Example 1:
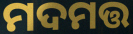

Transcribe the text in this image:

ମଦମତ୍ତ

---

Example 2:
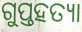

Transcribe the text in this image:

ଗୁପ୍ତହତ୍ୟା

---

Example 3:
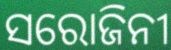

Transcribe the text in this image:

ସରୋଜିନୀ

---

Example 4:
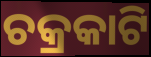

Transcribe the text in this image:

ଚକ୍ରକାଟି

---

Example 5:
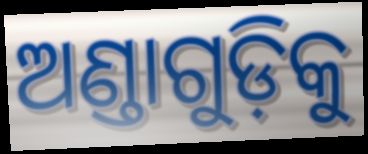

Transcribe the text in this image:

ଅଣ୍ଡାଗୁଡ଼ିକୁ